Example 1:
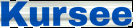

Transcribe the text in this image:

Kursee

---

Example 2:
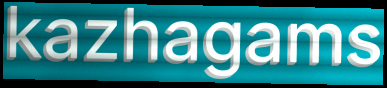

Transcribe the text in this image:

kazhagams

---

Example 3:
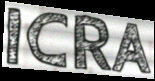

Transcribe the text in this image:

ICRA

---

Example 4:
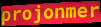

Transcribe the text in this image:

projonmer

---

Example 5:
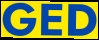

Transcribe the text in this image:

GED